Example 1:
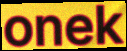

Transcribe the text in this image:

onek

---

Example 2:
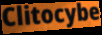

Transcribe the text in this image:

Clitocybe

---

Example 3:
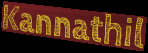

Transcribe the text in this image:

Kannathil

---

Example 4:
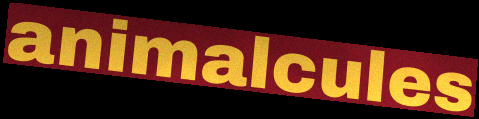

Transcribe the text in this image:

animalcules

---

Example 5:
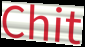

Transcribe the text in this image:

Chit